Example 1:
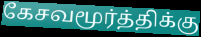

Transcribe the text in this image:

கேசவமூர்த்திக்கு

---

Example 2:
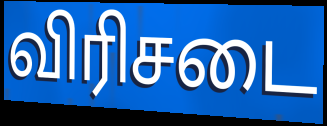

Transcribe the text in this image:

விரிசடை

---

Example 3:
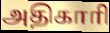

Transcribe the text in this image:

அதிகாரி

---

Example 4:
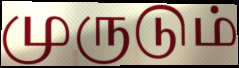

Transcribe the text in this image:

முருடும்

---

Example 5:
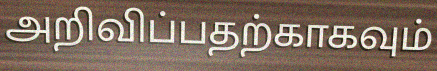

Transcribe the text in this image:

அறிவிப்பதற்காகவும்